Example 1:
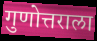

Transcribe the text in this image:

गुणोत्तराला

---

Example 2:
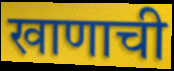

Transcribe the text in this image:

खाणाची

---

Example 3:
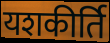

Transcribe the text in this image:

यशकीर्ति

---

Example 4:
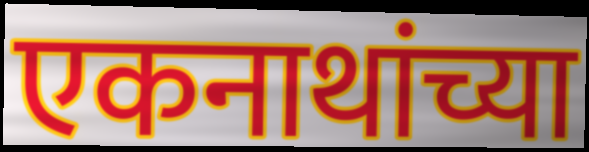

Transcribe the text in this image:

एकनाथांच्या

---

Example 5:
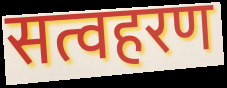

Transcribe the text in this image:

सत्वहरण